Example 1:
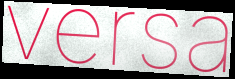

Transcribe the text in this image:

versa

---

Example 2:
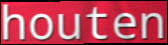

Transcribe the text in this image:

houten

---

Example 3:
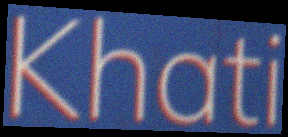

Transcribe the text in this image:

Khati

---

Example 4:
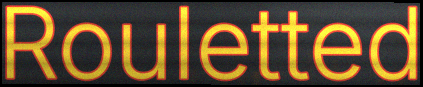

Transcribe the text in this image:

Rouletted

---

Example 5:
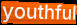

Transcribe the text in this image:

youthful